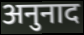
अनुनाद